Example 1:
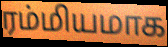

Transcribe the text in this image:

ரம்மியமாக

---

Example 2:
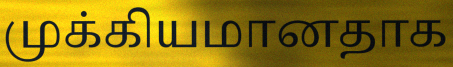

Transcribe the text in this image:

முக்கியமானதாக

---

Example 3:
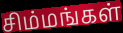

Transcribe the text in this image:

சிம்மங்கள்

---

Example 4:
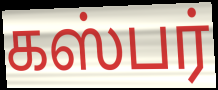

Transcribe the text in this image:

கஸ்பர்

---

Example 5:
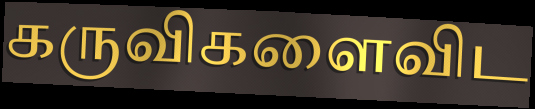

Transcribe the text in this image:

கருவிகளைவிட